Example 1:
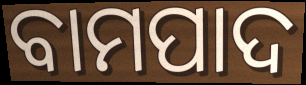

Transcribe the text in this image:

ବାମପାଦ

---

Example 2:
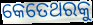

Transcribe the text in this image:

କେତେଥରକୁ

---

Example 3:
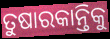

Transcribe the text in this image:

ତୁଷାରକାନ୍ତିକୁ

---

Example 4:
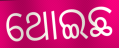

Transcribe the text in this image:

ଥୋଇଛ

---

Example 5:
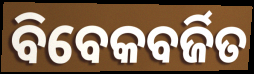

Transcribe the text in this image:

ବିବେକବର୍ଜିତ